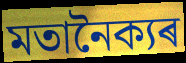
মতানৈক্যৰ